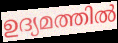
ഉദ്യമത്തിൽ